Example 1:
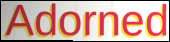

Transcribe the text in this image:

Adorned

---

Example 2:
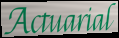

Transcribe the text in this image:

Actuarial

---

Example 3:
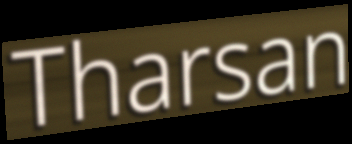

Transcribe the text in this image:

Tharsan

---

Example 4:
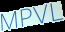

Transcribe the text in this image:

MPVL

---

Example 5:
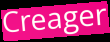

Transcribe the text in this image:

Creager